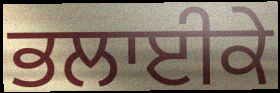
ਭਲਾਈਕੇ